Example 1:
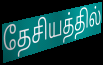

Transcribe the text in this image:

தேசியத்தில்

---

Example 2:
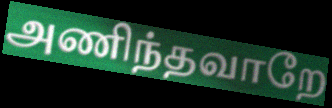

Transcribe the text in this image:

அணிந்தவாறே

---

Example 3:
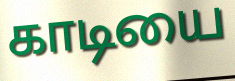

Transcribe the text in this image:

காடியை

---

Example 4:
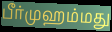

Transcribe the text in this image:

பீர்முஹம்மது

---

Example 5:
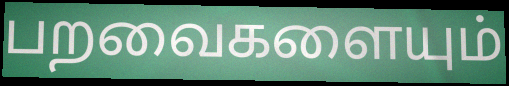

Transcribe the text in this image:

பறவைகளையும்